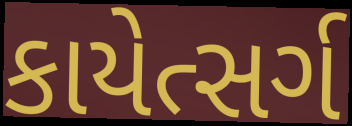
કાયેત્સર્ગ